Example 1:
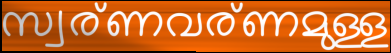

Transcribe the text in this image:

സ്വര്ണവര്ണമുള്ള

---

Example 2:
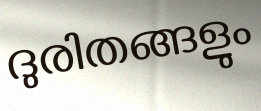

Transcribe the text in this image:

ദുരിതങ്ങളും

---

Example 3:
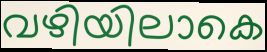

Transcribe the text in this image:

വഴിയിലാകെ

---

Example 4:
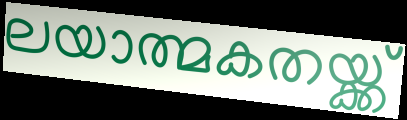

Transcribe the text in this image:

ലയാത്മകതയ്ക്ക്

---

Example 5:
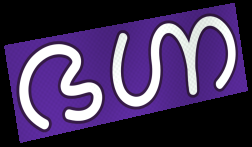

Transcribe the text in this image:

ഭഗ്ന